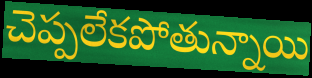
చెప్పలేకపోతున్నాయి